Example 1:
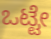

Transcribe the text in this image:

ಒಟ್ಟೇ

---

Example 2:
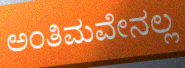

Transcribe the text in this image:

ಅಂತಿಮವೇನಲ್ಲ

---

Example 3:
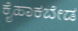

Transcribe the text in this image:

ಕೈಹಾಕಬೇಡ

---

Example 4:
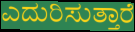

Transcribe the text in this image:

ಎದುರಿಸುತ್ತಾರೆ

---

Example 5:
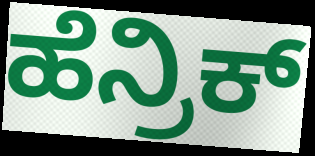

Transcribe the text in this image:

ಹೆನ್ರಿಕ್